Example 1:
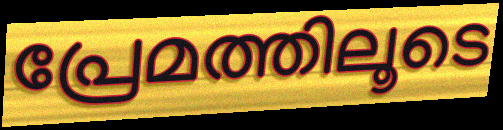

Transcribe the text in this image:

പ്രേമത്തിലൂടെ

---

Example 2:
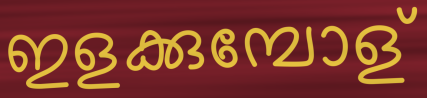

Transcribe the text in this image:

ഇളക്കുമ്പോള്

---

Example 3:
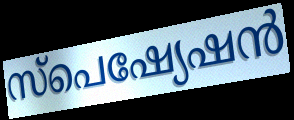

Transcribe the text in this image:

സ്പെഷ്യേഷൻ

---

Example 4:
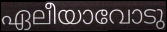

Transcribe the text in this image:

ഏലീയാവോടു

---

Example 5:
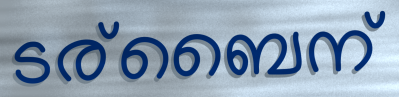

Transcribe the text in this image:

ടര്ബൈന്